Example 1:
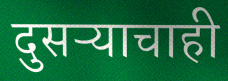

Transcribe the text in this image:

दुसऱ्याचाही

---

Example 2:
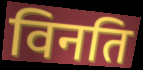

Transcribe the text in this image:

विनति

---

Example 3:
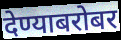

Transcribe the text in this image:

देण्याबरोबर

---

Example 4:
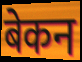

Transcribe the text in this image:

बेकन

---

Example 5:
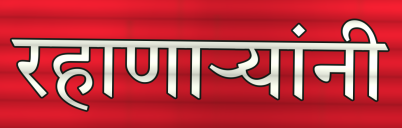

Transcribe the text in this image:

रहाणार्‍यांनी